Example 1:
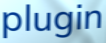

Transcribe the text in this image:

plugin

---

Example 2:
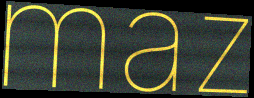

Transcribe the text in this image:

maz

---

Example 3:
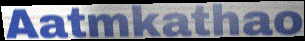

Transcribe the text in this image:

Aatmkathao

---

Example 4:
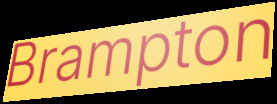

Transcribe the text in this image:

Brampton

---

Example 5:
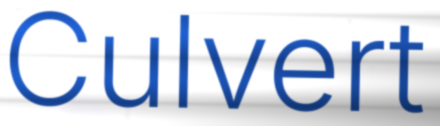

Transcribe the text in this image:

Culvert